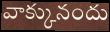
వాక్కునందు